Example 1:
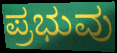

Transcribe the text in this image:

ಪ್ರಭುವು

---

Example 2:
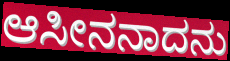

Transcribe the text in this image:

ಆಸೀನನಾದನು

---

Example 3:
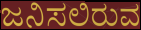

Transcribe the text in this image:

ಜನಿಸಲಿರುವ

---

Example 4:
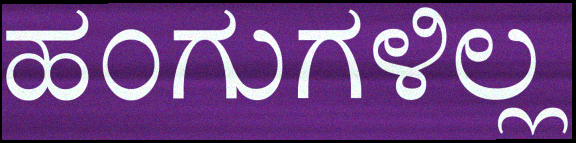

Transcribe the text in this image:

ಹಂಗುಗಳಿಲ್ಲ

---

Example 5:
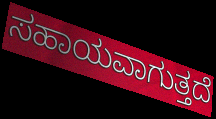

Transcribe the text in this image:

ಸಹಾಯವಾಗುತ್ತದೆ